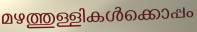
മഴത്തുള്ളികൾക്കൊപ്പം